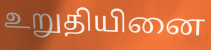
உறுதியினை